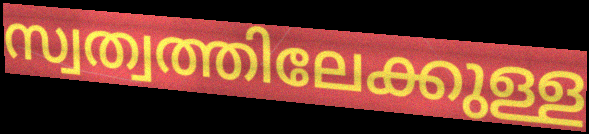
സ്വത്വത്തിലേക്കുള്ള